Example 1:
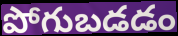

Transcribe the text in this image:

పోగుబడడం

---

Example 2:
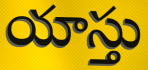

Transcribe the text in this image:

యాస్తు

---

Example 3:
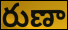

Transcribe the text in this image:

రుణా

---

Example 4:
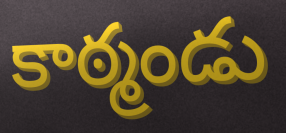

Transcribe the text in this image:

కాఠ్మండు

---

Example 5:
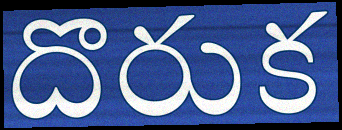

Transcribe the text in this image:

దొరుక